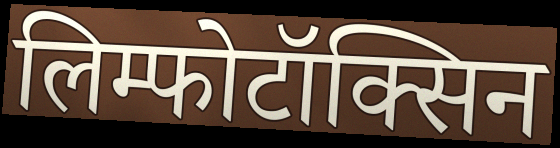
लिम्फोटॉक्सिन